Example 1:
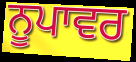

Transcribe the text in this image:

ਨੂਪਾਵਰ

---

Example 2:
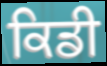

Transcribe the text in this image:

ਕਿਡੀ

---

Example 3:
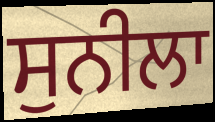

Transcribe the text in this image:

ਸੁਨੀਲਾ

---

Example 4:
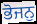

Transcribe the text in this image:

ਭੋਜਨੁ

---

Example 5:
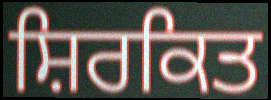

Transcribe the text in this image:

ਸ਼ਿਰਕਿਤ